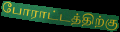
போராட்டத்திற்கு